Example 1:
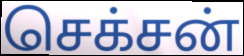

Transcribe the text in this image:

செக்சன்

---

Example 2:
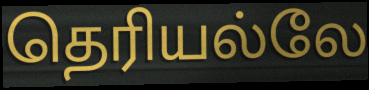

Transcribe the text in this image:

தெரியல்லே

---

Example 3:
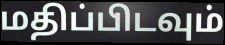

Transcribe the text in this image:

மதிப்பிடவும்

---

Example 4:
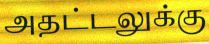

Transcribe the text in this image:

அதட்டலுக்கு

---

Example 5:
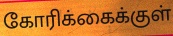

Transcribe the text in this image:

கோரிக்கைக்குள்